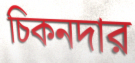
চিকনদার